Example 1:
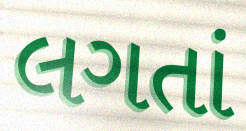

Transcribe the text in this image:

લગતાં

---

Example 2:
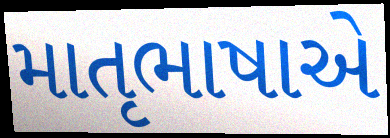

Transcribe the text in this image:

માતૃભાષાએ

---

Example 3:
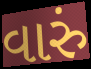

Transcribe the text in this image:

વારું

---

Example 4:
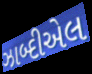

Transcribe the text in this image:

ઝાબ્દીએલ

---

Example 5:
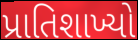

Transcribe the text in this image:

પ્રાતિશાખ્યો